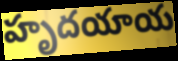
హృదయాయ